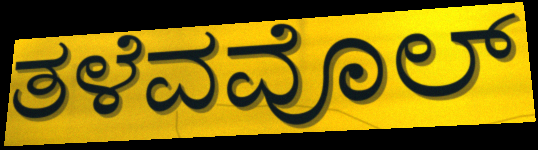
ತಳೆವವೊಲ್